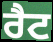
ਰੈਟ